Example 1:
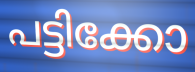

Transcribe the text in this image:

പട്ടിക്കോ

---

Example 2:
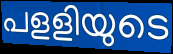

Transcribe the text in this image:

പളളിയുടെ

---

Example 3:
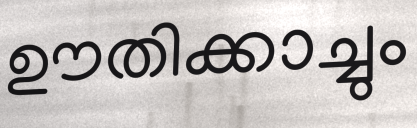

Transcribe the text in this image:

ഊതിക്കാച്ചും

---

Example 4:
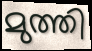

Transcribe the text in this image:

മുത്തി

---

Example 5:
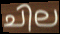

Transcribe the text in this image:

ചില